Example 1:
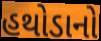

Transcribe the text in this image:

હથોડાનો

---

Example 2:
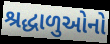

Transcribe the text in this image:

શ્રદ્ધાળુઓનો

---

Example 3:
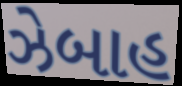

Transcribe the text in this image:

ઝેબાહ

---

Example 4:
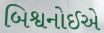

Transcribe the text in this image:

બિશ્વનોઈએ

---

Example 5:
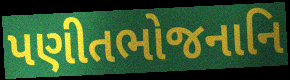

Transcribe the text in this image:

પણીતભોજનાનિ